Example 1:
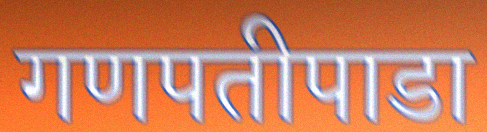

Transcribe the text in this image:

गणपतीपाडा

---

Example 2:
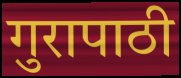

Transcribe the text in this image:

गुरापाठी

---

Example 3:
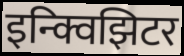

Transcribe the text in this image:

इन्क्विझिटर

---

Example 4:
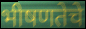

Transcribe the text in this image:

भीषणतेचे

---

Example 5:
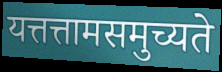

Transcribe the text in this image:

यत्तत्तामसमुच्यते